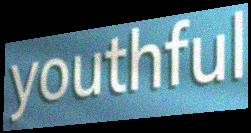
youthful